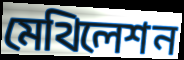
মেথিলেশন